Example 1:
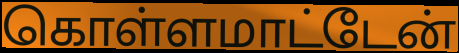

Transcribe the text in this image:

கொள்ளமாட்டேன்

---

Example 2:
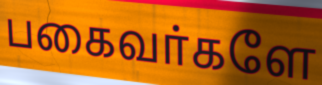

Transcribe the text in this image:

பகைவர்களே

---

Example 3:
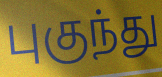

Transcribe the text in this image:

புகுந்து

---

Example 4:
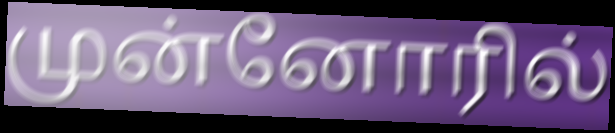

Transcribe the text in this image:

முன்னோரில்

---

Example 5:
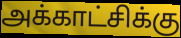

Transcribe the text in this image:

அக்காட்சிக்கு